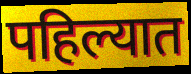
पहिल्यात